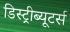
डिस्ट्रीब्यूटर्स